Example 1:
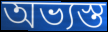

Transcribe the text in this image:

অভ্যস্ত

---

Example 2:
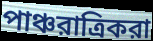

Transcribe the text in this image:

পাঞ্চরাত্রিকরা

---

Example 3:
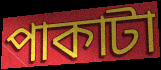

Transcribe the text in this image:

পাকাটা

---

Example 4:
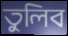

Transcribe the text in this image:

তুলিব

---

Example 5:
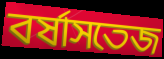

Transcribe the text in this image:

বর্ষাসতেজ